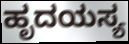
ಹೃದಯಸ್ಯ